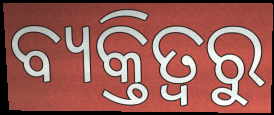
ବ୍ୟକ୍ତିତ୍ଵରୁ